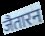
जैतारन